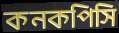
কনকপিসি